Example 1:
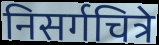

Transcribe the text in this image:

निसर्गचित्रे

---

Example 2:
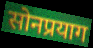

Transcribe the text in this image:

सोनप्रयाग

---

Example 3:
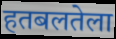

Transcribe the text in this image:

हतबलतेला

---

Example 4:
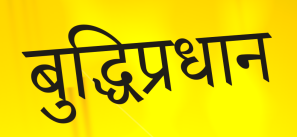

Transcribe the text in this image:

बुद्धिप्रधान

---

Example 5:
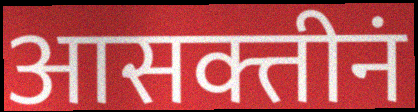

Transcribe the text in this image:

आसक्तीनं